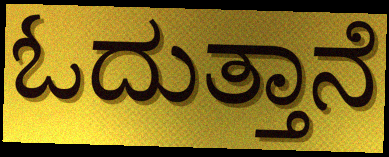
ಓದುತ್ತಾನೆ